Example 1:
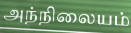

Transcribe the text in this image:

அந்நிலையம்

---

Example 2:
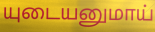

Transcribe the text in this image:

யுடையனுமாய்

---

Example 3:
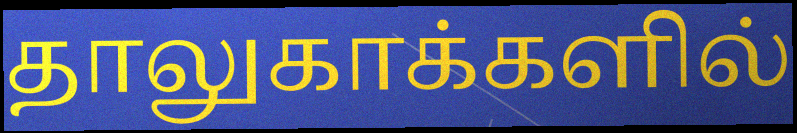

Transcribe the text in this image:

தாலுகாக்களில்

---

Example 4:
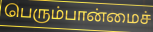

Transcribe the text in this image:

பெரும்பான்மைச்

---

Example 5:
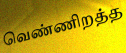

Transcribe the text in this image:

வெண்ணிறத்த